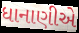
ધાનાણીએ